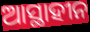
ଆସ୍ଥାହୀନ